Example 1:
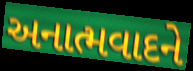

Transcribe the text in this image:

અનાત્મવાદને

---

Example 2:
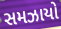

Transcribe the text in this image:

સમઝાયો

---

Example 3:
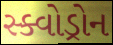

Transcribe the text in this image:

સ્ક્વોડ્રોન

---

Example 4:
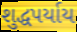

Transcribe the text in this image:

શુદ્ધપર્યાય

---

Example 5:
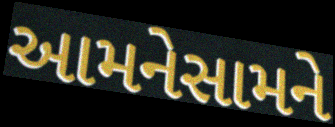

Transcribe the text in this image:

આમનેસામને